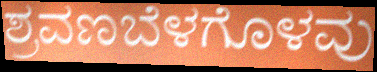
ಶ್ರವಣಬೆಳಗೊಳವು